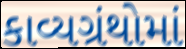
કાવ્યગ્રંથોમાં